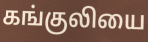
கங்குலியை